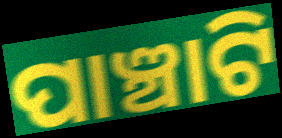
ପାଞ୍ଚାଟି